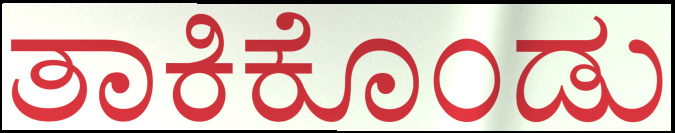
ತಾಕಿಕೊಂಡು